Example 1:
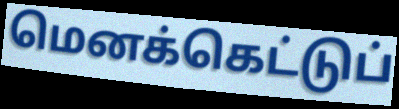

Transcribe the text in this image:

மெனக்கெட்டுப்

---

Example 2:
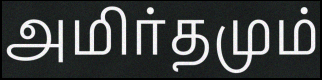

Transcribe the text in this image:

அமிர்தமும்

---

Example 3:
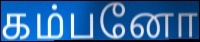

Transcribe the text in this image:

கம்பனோ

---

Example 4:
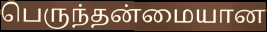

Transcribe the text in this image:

பெருந்தன்மையான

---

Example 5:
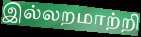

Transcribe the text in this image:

இல்லறமாற்றி